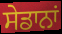
ਸੇਡਾਨਾਂ